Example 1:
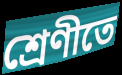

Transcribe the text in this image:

শ্ৰেণীতে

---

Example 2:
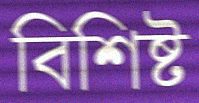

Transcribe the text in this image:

বিশিষ্ট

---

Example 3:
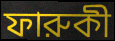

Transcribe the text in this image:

ফাৰুকী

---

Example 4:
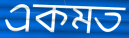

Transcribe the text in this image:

একমত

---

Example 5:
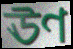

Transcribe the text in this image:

ঊণ